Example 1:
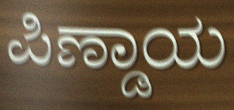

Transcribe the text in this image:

ಪಿಣ್ಡಾಯ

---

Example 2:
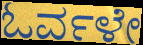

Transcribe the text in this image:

ಓರ್ವಳೇ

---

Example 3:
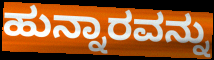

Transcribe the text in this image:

ಹುನ್ನಾರವನ್ನು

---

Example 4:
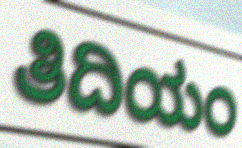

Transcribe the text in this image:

ತಿದಿಯಂ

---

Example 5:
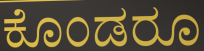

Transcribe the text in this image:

ಕೊಂಡರೂ